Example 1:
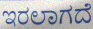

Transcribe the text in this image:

ಇರಲಾಗದೆ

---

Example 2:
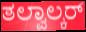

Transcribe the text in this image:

ತಲ್ವಾಲ್ಕರ್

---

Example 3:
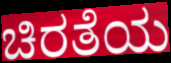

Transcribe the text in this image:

ಚಿರತೆಯ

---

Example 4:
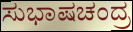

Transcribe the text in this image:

ಸುಭಾಷಚಂದ್ರ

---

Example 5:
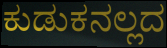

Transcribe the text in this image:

ಕುಡುಕನಲ್ಲದ